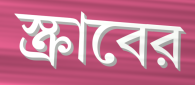
স্ক্রাবের